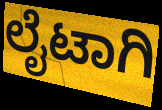
ಲೈಟಾಗಿ